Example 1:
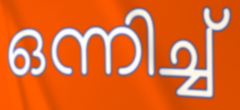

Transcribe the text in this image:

ഒന്നിച്ച്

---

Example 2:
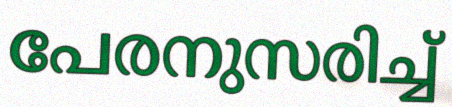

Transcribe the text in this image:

പേരനുസരിച്ച്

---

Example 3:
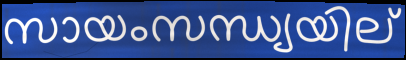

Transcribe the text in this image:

സായംസന്ധ്യയില്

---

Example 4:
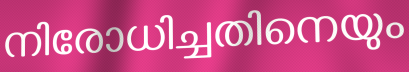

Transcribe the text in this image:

നിരോധിച്ചതിനെയും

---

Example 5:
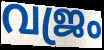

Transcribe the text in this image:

വജ്രം